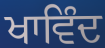
ਖਾਵਿੰਦ